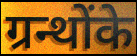
ग्रन्थोंके